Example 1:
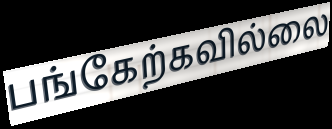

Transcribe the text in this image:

பங்கேற்கவில்லை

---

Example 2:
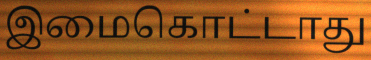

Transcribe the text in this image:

இமைகொட்டாது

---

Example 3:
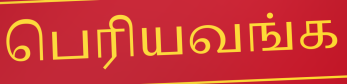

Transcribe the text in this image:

பெரியவங்க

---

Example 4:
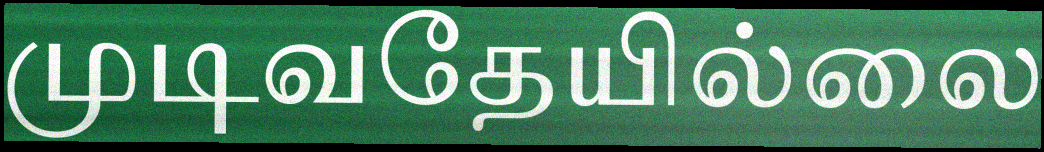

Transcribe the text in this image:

முடிவதேயில்லை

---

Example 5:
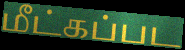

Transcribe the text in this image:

மீட்கப்பட